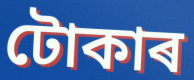
টোকাৰ